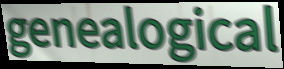
genealogical